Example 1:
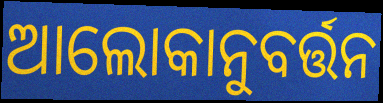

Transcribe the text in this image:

ଆଲୋକାନୁବର୍ତ୍ତନ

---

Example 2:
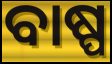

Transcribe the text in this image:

ବାଷ୍ପ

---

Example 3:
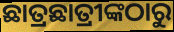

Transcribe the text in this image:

ଛାତ୍ରଛାତ୍ରୀଙ୍କଠାରୁ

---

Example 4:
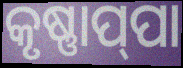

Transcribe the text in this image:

କୃଷ୍ଣାପ୍‌ପା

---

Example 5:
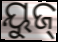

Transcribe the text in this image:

ୟୁଜ୍